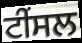
ਟੀਂਸਲ